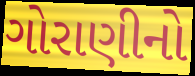
ગોરાણીનો